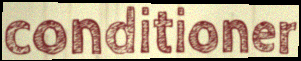
conditioner